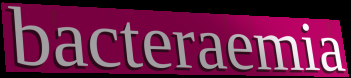
bacteraemia